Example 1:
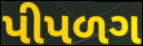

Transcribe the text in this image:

પીપળગ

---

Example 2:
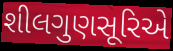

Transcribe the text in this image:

શીલગુણસૂરિએ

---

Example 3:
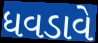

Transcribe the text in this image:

ધવડાવે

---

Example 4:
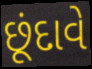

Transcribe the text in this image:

છૂંદાવે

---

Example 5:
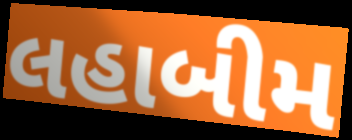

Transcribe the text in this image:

લહાબીમ